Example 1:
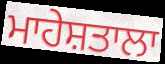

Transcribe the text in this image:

ਮਾਹੇਸ਼ਤਾਲਾ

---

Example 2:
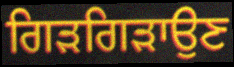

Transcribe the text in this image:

ਗਿੜਗਿੜਾਉਣ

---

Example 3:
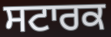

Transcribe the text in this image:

ਸਟਾਰਕ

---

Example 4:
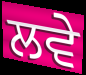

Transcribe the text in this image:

ਲਵੇ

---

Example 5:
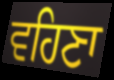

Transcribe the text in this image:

ਵਹਿਣਾ